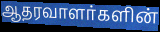
ஆதரவாளர்களின்